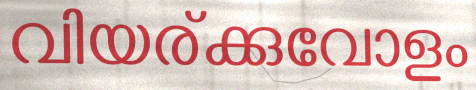
വിയര്ക്കുവോളം